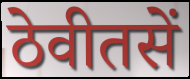
ठेवीतसें